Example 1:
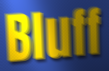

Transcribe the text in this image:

Bluff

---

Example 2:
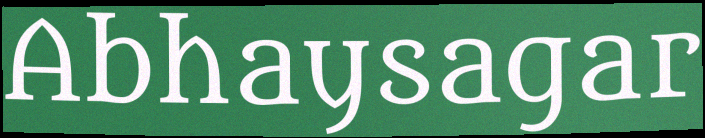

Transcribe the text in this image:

Abhaysagar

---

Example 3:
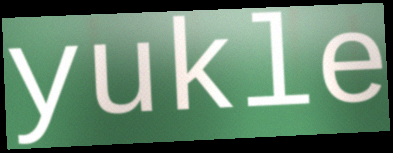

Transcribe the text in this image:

yukle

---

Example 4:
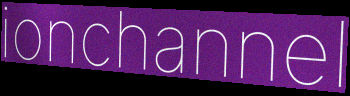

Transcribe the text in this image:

ionchannel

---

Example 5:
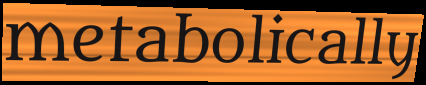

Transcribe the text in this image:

metabolically